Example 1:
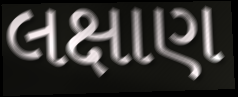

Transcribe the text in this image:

લક્ષાણ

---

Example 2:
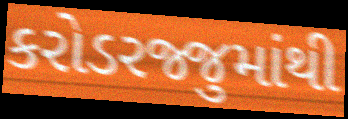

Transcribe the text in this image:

કરોડરજ્જુમાંથી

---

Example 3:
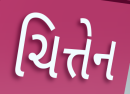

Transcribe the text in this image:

ચિત્તેન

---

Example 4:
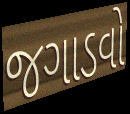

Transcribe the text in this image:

જગાડવો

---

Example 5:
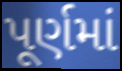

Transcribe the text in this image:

પૂર્ણમાં